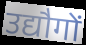
उद्यौगों